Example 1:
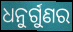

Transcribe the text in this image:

ଧନୁର୍ଗୁଣର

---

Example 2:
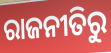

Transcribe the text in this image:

ରାଜନୀତିରୁ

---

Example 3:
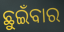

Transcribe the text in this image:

ଛୁଇଁବାର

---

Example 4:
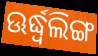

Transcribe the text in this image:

ଊର୍ଦ୍ଧ୍ୱଲିଙ୍ଗ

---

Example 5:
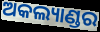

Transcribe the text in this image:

ଅକଲ୍ୟାଣ୍ଡର